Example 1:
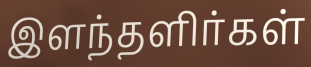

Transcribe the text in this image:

இளந்தளிர்கள்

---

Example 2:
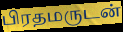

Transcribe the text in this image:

பிரதமருடன்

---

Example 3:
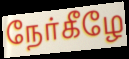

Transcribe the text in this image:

நேர்கீழே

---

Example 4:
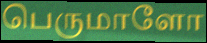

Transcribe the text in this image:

பெருமாளோ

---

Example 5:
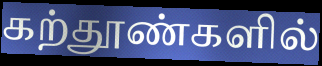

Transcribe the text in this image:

கற்தூண்களில்